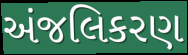
અંજલિકરણ